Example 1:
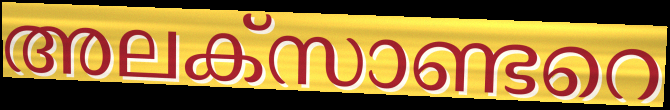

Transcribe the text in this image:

അലക്സാണ്ടറെ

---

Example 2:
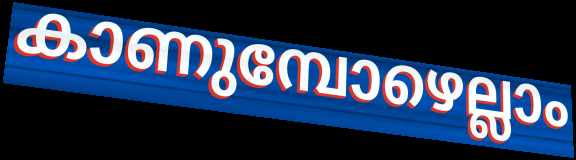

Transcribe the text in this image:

കാണുമ്പോഴെല്ലാം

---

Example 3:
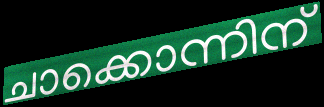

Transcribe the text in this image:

ചാക്കൊന്നിന്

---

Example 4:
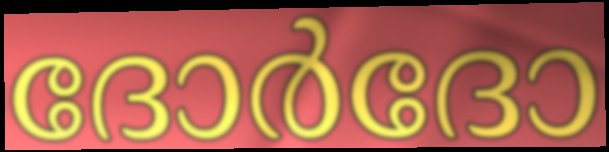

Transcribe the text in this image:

ദോർദോ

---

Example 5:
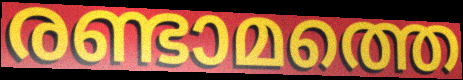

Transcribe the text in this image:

രണ്ടാമത്തെ